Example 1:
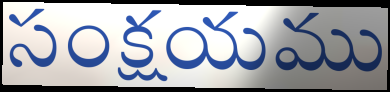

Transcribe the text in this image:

సంక్షయము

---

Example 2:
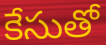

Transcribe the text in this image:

కేసుతో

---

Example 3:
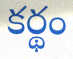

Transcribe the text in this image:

కర్థం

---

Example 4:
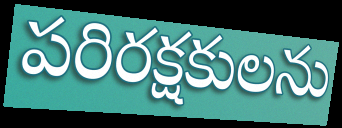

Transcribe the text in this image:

పరిరక్షకులను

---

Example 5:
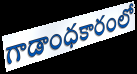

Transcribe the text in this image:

గాడాంధకారంలో